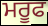
ਮਰੂਫ